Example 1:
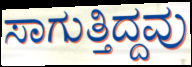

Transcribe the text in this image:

ಸಾಗುತ್ತಿದ್ದವು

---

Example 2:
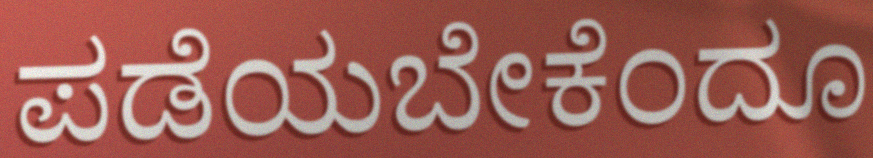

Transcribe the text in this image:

ಪಡೆಯಬೇಕೆಂದೂ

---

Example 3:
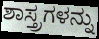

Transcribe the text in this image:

ಶಾಸ್ತ್ರಗಳನ್ನು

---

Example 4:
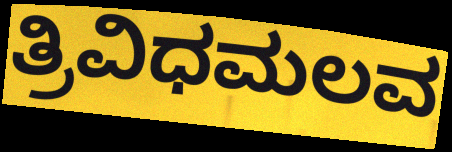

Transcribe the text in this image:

ತ್ರಿವಿಧಮಲವ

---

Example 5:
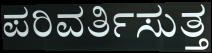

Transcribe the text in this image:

ಪರಿವರ್ತಿಸುತ್ತ